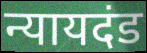
न्यायदंड